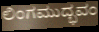
ಲಿಂಗಮುದ್ಭವಂ